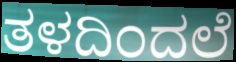
ತಳದಿಂದಲೆ